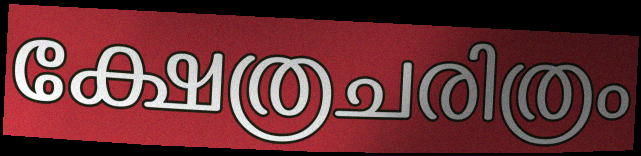
ക്ഷേത്രചരിത്രം